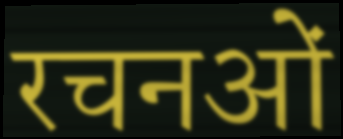
रचनओं